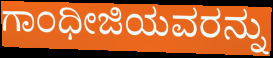
ಗಾಂಧೀಜಿಯವರನ್ನು